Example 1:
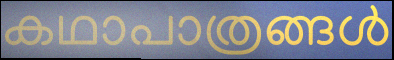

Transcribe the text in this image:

കഥാപാത്രങ്ങൾ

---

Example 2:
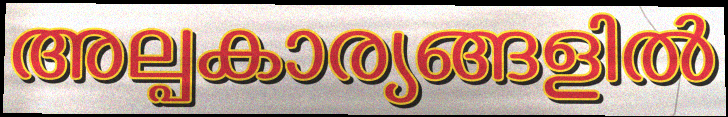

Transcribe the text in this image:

അല്പകാര്യങ്ങളിൽ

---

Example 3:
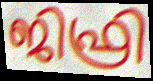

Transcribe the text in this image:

ജിഫ്രി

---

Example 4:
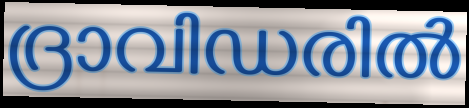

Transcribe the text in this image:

ദ്രാവിഡരിൽ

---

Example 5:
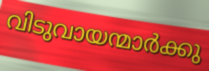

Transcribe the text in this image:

വിടുവായന്മാർക്കു